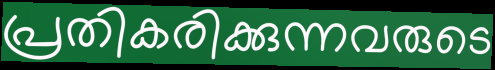
പ്രതികരിക്കുന്നവരുടെ